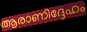
ആരാണിദ്ദേഹം